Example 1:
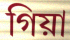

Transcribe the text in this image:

গিয়া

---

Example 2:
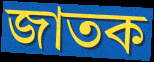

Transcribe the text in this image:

জাতক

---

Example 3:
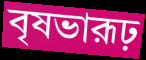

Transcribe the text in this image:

বৃষভারূঢ়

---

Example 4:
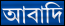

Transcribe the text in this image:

আবাদি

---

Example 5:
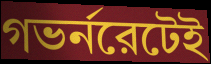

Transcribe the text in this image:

গভর্নরেটেই